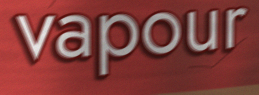
vapour